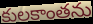
కులకాంతను